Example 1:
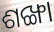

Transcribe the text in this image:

ଶଙ୍ଖା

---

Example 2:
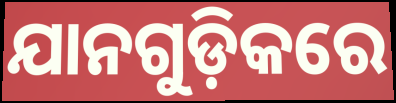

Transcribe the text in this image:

ଯାନଗୁଡ଼ିକରେ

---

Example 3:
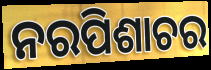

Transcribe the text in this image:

ନରପିଶାଚର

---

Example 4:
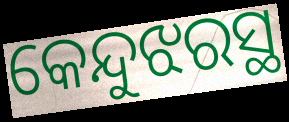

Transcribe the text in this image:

କେନ୍ଦୁଝରସ୍ଥ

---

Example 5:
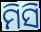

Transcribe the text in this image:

ମିସି